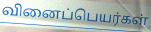
வினைப்பெயர்கள்